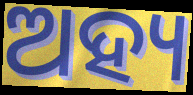
ଅହ୍ୟ